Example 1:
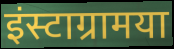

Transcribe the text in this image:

इंस्टाग्रामया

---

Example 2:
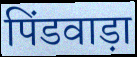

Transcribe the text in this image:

पिंडवाड़ा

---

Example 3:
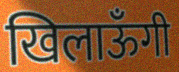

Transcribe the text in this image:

खिलाऊँगी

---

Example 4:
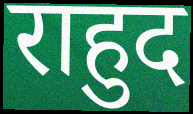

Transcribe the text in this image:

राहुद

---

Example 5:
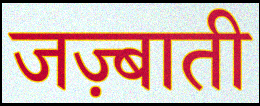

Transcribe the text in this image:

जज़्बाती